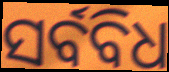
ସର୍ବବିଧ